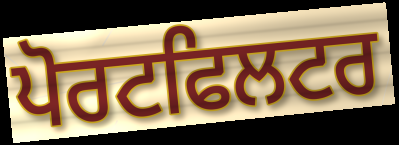
ਪੋਰਟਫਿਲਟਰ